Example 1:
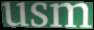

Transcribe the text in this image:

usm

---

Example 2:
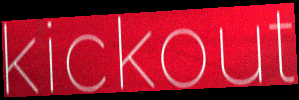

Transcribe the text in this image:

kickout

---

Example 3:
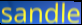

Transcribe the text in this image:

sandle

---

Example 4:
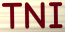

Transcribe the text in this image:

TNI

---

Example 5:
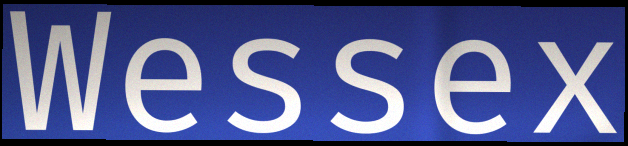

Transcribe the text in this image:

Wessex